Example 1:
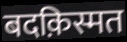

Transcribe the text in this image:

बदक़िस्मत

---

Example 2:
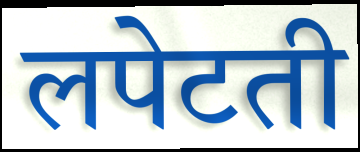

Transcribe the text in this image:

लपेटती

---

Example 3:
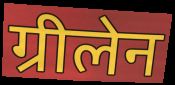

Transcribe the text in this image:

ग्रीलेन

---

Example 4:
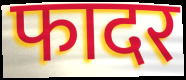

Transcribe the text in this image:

फादर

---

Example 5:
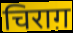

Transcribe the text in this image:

चिराग़